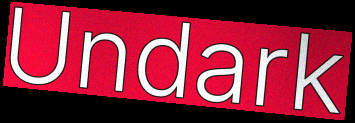
Undark